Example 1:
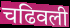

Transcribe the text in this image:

चढिवली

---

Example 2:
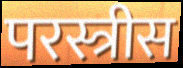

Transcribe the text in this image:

परस्त्रीस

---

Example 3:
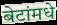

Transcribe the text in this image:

बेटांमधे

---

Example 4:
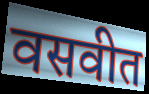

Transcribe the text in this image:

वसवीत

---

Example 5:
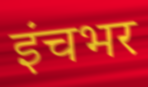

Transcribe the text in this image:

इंचभर